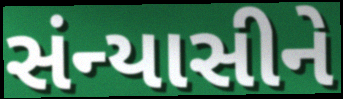
સંન્યાસીને